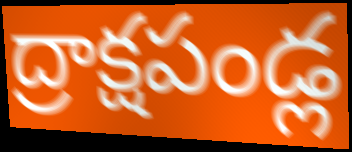
ద్రాక్షపండ్ల